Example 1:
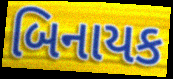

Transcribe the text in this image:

બિનાયક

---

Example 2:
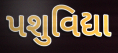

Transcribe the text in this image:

પશુવિદ્યા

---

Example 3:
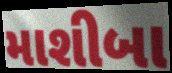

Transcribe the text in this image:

માશીબા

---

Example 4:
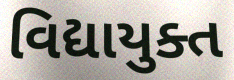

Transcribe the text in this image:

વિદ્યાયુક્ત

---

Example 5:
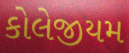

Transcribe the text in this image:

કોલેજીયમ